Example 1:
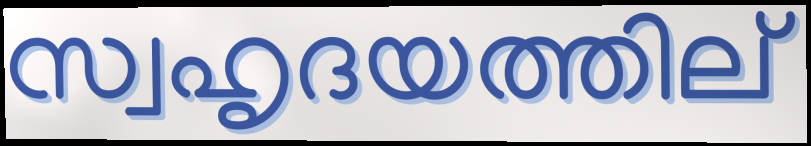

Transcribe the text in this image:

സ്വഹൃദയത്തില്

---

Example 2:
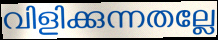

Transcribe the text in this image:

വിളിക്കുന്നതല്ലേ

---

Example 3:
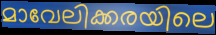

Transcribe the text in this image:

മാവേലിക്കരയിലെ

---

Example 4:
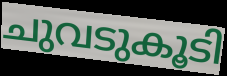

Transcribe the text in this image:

ചുവടുകൂടി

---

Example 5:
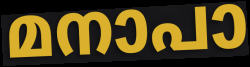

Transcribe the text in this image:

മനാപാ